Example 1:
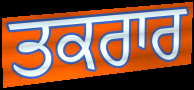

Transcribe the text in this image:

ਤਕਰਾਰ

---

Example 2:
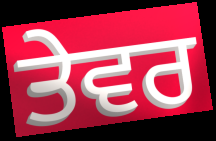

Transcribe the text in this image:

ਤੇਵਰ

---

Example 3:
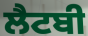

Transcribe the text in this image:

ਲੈਟਬੀ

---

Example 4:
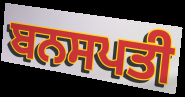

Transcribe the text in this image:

ਬਨਸਪਤੀ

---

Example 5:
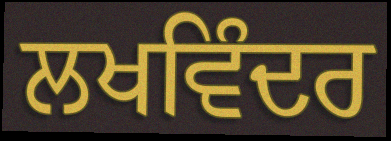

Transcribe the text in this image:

ਲਖਵਿੰਦਰ